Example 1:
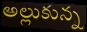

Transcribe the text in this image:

అల్లుకున్న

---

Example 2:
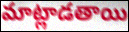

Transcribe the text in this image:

మాట్లాడతాయి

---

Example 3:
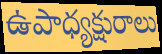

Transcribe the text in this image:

ఉపాధ్యక్షురాలు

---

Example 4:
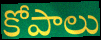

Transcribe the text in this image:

కోపాలు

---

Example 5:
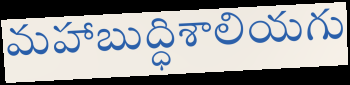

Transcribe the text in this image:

మహాబుద్ధిశాలియగు